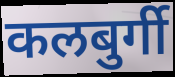
कलबुर्गी